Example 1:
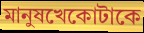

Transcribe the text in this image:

মানুষখেকোটাকে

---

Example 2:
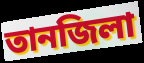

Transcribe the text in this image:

তানজিলা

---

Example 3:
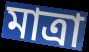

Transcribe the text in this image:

মাত্রা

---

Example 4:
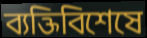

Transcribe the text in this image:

ব্যক্তিবিশেষে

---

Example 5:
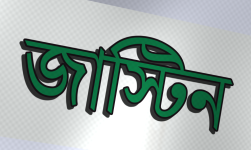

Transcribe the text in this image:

জাস্টিন